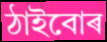
ঠাইবোৰ